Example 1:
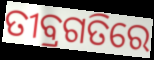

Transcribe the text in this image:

ତୀବ୍ରଗତିରେ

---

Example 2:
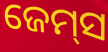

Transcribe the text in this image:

ଜେମ୍‌ସ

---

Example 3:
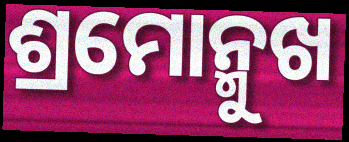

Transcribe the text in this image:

ଶ୍ରମୋନ୍ମୁଖ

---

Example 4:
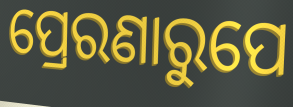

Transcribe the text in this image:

ପ୍ରେରଣାରୁପେ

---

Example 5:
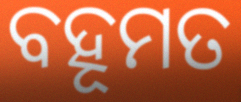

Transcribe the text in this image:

ବହୂମତ